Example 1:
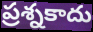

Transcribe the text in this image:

ప్రశ్నకాదు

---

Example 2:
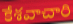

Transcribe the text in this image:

కేశవాచారి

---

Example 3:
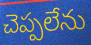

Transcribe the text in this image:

చెప్పలేను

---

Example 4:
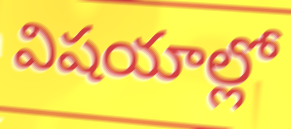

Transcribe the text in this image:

విషయాల్లో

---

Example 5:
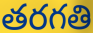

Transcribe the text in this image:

తరగతి